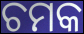
ଚମକ